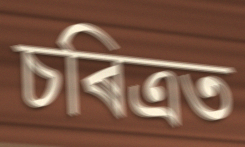
চৰিত্ৰত